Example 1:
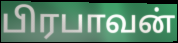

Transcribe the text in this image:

பிரபாவன்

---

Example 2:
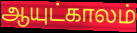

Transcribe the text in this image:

ஆயுட்காலம்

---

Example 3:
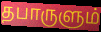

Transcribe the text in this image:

தபாருளும்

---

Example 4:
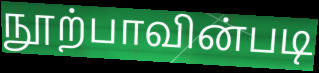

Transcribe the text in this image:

நூற்பாவின்படி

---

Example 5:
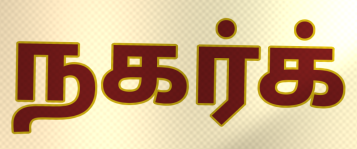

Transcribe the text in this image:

நகர்க்